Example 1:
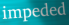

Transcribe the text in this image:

impeded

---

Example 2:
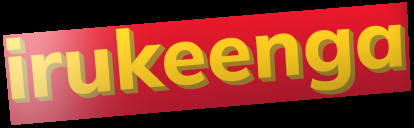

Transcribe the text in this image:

irukeenga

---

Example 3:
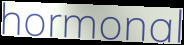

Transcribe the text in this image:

hormonal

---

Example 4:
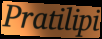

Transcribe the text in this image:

Pratilipi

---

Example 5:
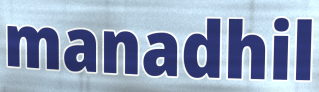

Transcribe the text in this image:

manadhil